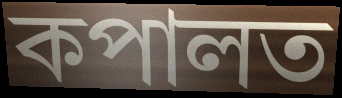
কপালত